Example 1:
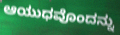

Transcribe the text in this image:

ಆಯುಧವೊಂದನ್ನು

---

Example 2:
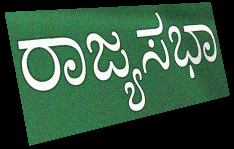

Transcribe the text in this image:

ರಾಜ್ಯಸಭಾ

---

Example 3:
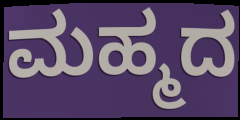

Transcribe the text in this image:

ಮಹ್ಮದ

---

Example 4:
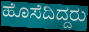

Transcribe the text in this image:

ಹೊಸೆದಿದ್ದರು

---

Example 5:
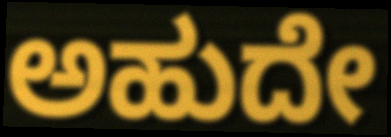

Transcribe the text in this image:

ಅಹುದೇ